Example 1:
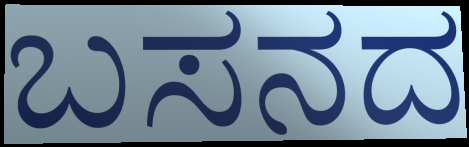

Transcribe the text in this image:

ಬಸನದ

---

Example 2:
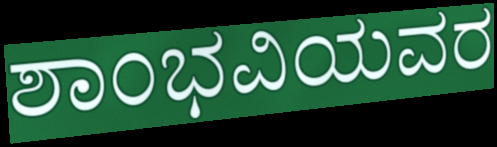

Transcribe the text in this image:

ಶಾಂಭವಿಯವರ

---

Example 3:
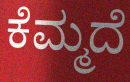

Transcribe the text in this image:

ಕೆಮ್ಮದೆ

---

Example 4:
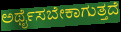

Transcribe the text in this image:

ಅರ್ಥೈಸಬೇಕಾಗುತ್ತದೆ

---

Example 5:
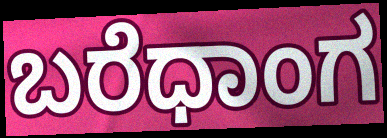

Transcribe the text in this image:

ಬರೆಧಾಂಗ